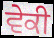
ਵੇਕੀ